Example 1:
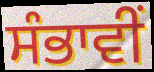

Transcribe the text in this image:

ਸੰਭਾਵੀਂ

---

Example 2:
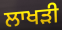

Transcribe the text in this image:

ਲਾਖੜੀ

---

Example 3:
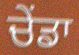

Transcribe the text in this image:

ਚੇਂਡਾ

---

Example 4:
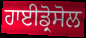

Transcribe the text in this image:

ਹਾਈਡ੍ਰੋਸੋਲ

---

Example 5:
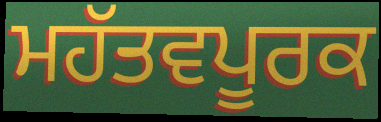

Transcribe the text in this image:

ਮਹੱਤਵਪੂਰਕ